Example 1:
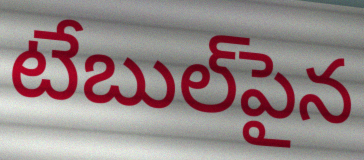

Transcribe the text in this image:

టేబుల్‌పైన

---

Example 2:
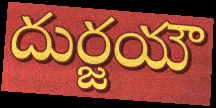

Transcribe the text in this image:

దుర్జయౌ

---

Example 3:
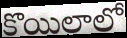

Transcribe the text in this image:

కొయిలాలో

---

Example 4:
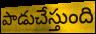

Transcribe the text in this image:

పాడుచేస్తుంది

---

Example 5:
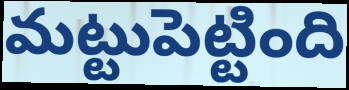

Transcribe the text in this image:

మట్టుపెట్టింది